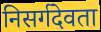
निसर्गदेवता